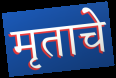
मृताचे